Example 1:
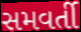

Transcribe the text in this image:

સમવર્તી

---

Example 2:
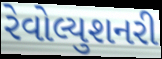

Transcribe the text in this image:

રેવોલ્યુશનરી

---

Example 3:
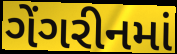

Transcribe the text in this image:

ગેંગરીનમાં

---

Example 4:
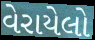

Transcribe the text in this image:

વેરાયેલો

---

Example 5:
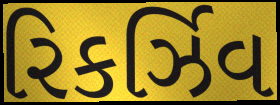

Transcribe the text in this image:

રિકર્ઝિવ